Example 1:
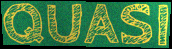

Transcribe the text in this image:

QUASI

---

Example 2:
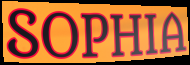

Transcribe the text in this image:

SOPHIA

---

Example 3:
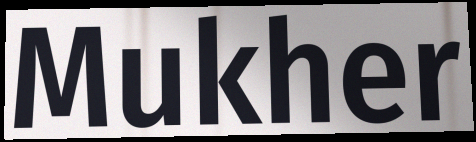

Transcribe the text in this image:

Mukher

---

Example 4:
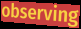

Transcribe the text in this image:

observing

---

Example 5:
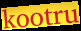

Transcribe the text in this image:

kootru